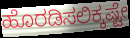
ಹೊರಡಿಸಲಿಕ್ಕಷ್ಟೇ